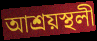
আশ্ৰয়স্থলী